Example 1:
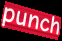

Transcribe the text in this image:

punch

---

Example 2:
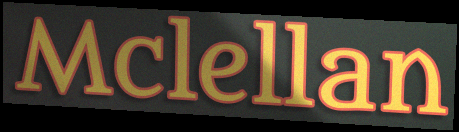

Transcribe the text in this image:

Mclellan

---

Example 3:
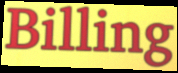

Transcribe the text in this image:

Billing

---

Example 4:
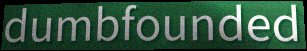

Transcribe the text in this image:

dumbfounded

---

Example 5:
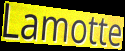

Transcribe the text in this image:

Lamotte